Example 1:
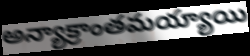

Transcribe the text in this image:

అన్యాక్రాంతమయ్యాయి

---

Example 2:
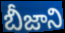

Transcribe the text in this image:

బీజాని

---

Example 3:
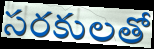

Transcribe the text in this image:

సరకులతో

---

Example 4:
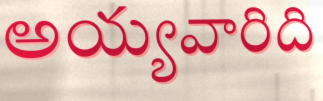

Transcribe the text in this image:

అయ్యవారిది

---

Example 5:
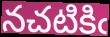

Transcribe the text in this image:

నచటికిఁ